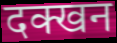
दक्खन